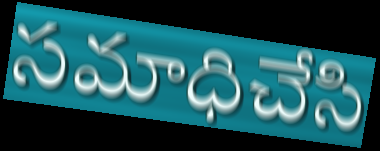
సమాధిచేసి